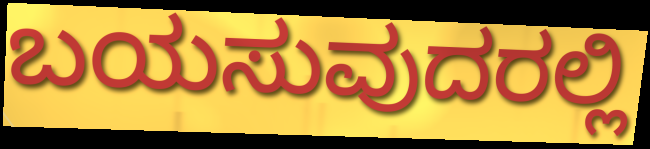
ಬಯಸುವುದರಲ್ಲಿ